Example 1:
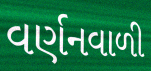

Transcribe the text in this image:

વર્ણનવાળી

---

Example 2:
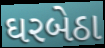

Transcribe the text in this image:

ઘરબેઠા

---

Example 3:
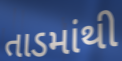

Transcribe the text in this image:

તાડમાંથી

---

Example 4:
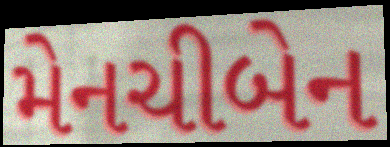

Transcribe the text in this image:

મેનચીબેન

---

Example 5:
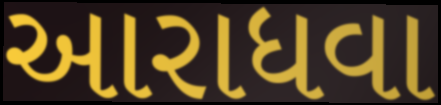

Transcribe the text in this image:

આરાધવા